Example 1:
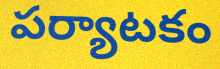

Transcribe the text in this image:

పర్యాటకం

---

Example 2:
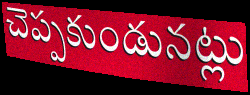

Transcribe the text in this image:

చెప్పకుండునట్లు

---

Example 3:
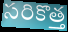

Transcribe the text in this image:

సరికొత్త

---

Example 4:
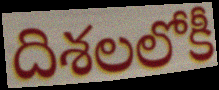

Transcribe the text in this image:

దిశలలోకీ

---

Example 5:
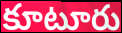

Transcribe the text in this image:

కూటూరు